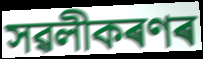
সৱলীকৰণৰ